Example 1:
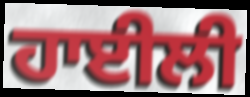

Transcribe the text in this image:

ਹਾਈਲੀ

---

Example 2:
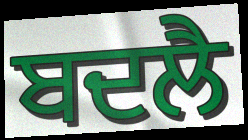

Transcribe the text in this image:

ਬਦਲੈ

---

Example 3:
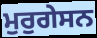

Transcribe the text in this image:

ਮੁਰੁਗੇਸਨ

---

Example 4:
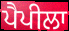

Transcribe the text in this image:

ਪੈਪੀਲਾ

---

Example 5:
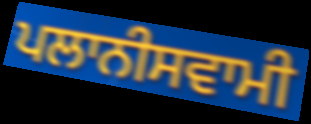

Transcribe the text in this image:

ਪਲਾਨੀਸਵਾਮੀ